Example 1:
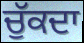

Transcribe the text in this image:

ਚੁੱਕਦਾ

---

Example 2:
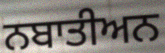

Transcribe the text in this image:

ਨਬਾਤੀਅਨ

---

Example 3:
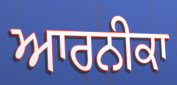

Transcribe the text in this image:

ਆਰਨੀਕਾ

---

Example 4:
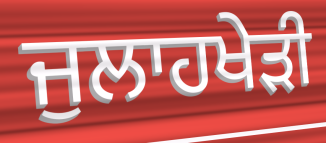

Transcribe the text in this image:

ਜੁਲਾਹਖੇੜੀ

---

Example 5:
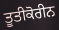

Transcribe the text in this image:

ਤੂਤੀਕੋਰੀਨ